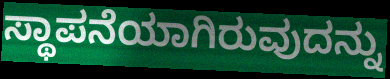
ಸ್ಥಾಪನೆಯಾಗಿರುವುದನ್ನು